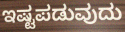
ಇಷ್ಟಪಡುವುದು